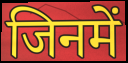
जिनमें